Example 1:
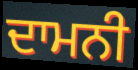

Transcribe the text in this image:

ਦਾਮਨੀ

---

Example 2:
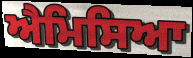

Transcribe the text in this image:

ਐਮਿਸਿਆ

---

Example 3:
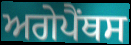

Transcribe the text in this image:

ਅਗੇਪੈਂਥਸ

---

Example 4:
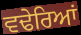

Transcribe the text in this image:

ਵਢੇਰਿਆਂ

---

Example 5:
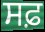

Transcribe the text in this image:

ਸਫ਼